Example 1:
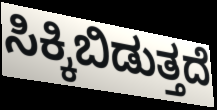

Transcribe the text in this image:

ಸಿಕ್ಕಿಬಿಡುತ್ತದೆ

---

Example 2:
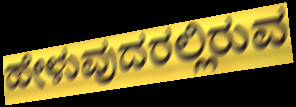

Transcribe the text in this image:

ಹೇಳುವುದರಲ್ಲಿರುವ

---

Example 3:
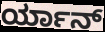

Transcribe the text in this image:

ರ್ಯಾನ್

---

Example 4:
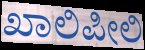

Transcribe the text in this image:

ಖಾಲಿಪೀಲಿ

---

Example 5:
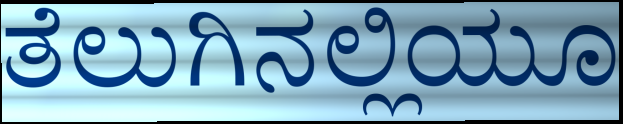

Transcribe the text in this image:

ತೆಲುಗಿನಲ್ಲಿಯೂ